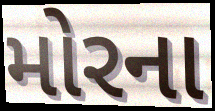
મોરના